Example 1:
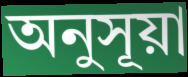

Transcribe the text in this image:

অনুসূয়া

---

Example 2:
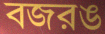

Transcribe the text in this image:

বজরঙ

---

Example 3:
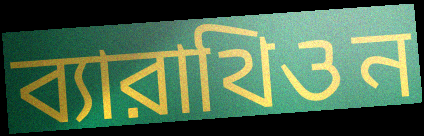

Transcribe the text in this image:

ব্যারাথিওন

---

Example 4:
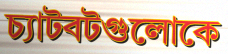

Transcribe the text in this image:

চ্যাটবটগুলোকে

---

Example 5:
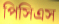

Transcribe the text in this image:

পিসিএস